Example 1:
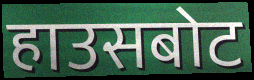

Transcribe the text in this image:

हाउसबोट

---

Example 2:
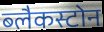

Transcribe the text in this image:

ब्‍लैकस्‍टोन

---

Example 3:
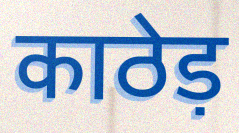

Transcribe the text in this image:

काठेड़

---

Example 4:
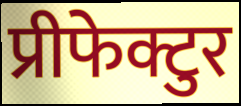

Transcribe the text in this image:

प्रीफेक्टुर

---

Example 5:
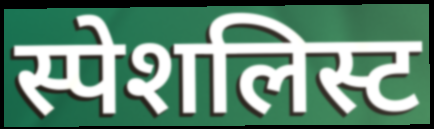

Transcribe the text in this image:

स्पेशलिस्ट